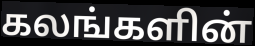
கலங்களின்